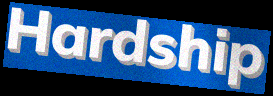
Hardship